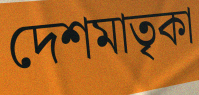
দেশমাতৃকা